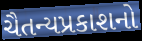
ચૈતન્યપ્રકાશનો